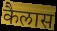
कैलास